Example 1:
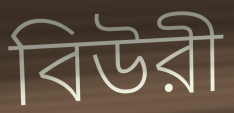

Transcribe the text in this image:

বিউরী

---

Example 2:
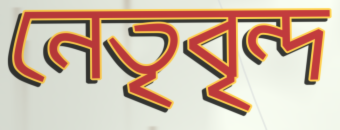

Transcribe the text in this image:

নেতৃবৃন্দ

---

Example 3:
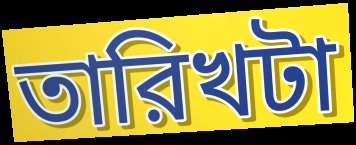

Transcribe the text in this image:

তারিখটা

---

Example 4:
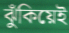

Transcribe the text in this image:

ঝুঁকিয়েই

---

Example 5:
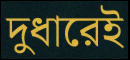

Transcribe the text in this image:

দুধারেই